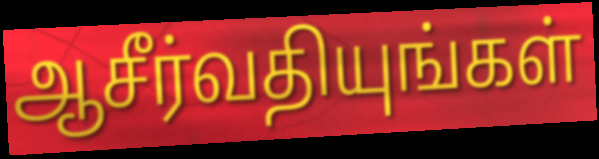
ஆசீர்வதியுங்கள்